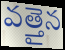
వత్తైన